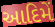
આદિમેં